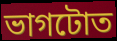
ভাগটোত